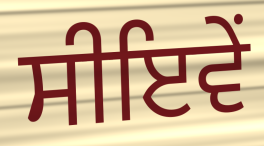
ਸੀਇਵੇਂ